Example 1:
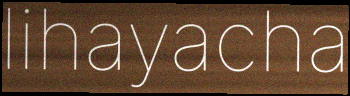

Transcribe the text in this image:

lihayacha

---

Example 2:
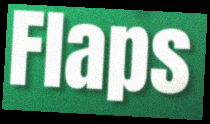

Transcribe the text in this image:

Flaps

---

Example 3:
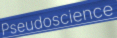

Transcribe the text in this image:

Pseudoscience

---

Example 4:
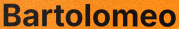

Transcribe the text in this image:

Bartolomeo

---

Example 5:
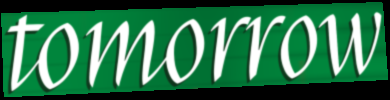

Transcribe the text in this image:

tomorrow